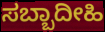
ಸಬ್ಬಾದೀಹಿ